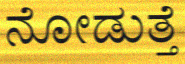
ನೋಡುತ್ತೆ